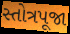
સ્તોત્રપૂજા